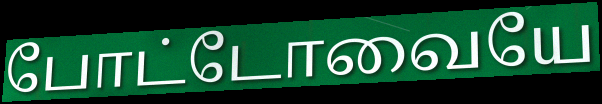
போட்டோவையே